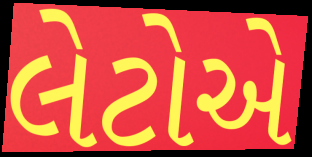
લેટોએ